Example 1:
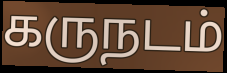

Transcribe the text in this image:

கருநடம்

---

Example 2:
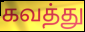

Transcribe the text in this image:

கவத்து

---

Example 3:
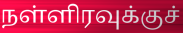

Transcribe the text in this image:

நள்ளிரவுக்குச்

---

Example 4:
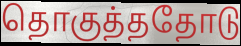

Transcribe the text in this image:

தொகுத்ததோடு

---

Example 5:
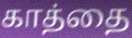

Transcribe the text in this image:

காத்தை